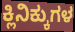
ಕ್ಲಿನಿಕ್ಕುಗಳ